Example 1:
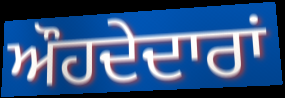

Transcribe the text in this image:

ਔਹਦੇਦਾਰਾਂ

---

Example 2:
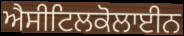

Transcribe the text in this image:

ਐਸੀਟਿਲਕੋਲਾਈਨ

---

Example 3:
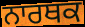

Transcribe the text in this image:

ਨਾਰਥਕ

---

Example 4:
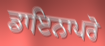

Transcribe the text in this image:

ਡਾਇਨਾਪਰੋ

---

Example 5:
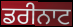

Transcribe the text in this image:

ਡਰੀਨਾਟ